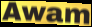
Awam